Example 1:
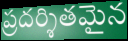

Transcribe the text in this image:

ప్రదర్శితమైన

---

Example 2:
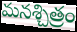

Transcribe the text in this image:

మనశ్చిత్రం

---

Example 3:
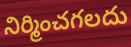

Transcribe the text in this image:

నిర్మించగలదు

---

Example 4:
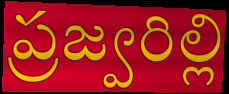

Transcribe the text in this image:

ప్రజ్వరిల్లి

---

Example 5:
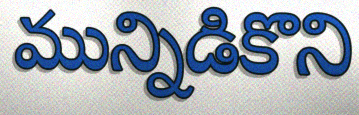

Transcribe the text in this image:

మున్నిడికొని